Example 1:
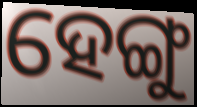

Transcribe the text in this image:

ହେଙ୍ଗୁ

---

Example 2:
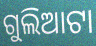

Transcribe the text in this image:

ଗୁଲିଆଟା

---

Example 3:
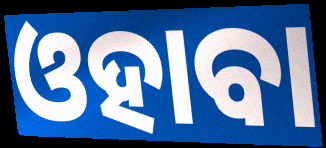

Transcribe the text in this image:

ଓହାବା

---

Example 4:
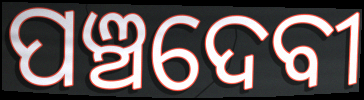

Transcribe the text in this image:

ପଞ୍ଚଦେବୀ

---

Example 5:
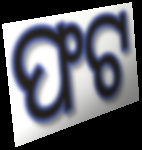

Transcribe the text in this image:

ଫଟ